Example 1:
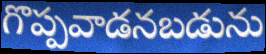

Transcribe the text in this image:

గొప్పవాడనబడును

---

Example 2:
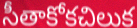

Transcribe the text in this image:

సీతాకోకచిలుక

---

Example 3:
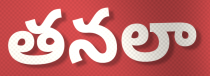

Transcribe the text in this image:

తనలా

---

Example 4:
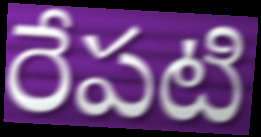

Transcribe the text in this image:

రేపటి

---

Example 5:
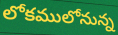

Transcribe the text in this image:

లోకములోనున్న